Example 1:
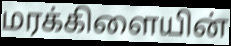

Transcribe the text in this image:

மரக்கிளையின்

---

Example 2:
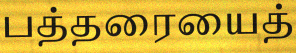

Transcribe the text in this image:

பத்தரையைத்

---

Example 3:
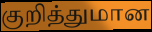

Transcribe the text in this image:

குறித்துமான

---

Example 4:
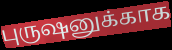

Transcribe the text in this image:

புருஷனுக்காக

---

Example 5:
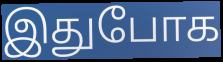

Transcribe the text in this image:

இதுபோக